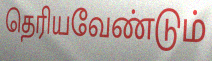
தெரியவேண்டும்